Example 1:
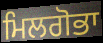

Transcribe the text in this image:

ਮਿਲਗੋਭਾ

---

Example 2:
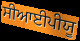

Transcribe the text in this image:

ਸੀਆਈਪੀਯੂ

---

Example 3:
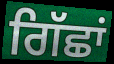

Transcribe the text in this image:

ਗਿੱਛਾਂ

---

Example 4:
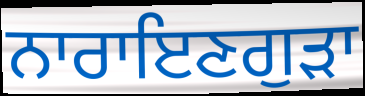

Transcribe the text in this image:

ਨਾਰਾਇਣਗੁੜਾ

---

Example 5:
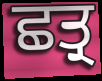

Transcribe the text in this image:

ਛਤ੍ਰ